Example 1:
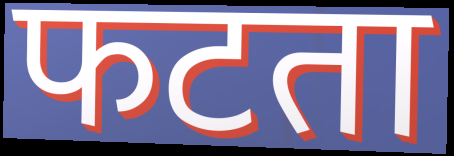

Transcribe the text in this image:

फटता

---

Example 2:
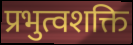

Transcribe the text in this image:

प्रभुत्वशक्ति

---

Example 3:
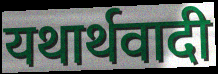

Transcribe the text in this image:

यथार्थवादी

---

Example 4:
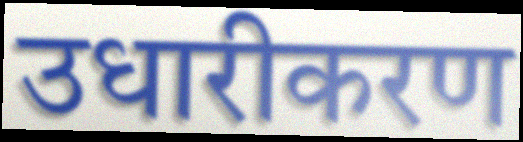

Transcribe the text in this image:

उधारीकरण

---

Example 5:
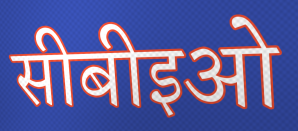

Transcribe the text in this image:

सीबीइओ